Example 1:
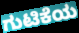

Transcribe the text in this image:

ಗುಟಿಕೆಯ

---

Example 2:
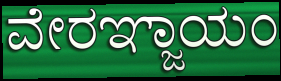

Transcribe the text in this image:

ವೇರಞ್ಜಾಯಂ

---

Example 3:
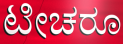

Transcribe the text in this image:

ಟೀಚರೂ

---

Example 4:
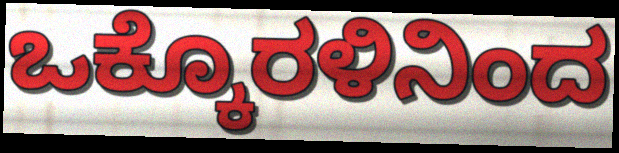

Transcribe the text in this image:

ಒಕ್ಕೊರಳಿನಿಂದ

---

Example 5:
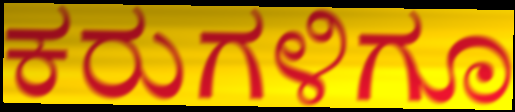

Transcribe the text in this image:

ಕರುಗಳಿಗೂ